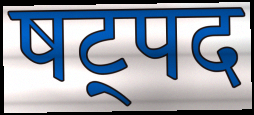
षट्पद